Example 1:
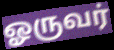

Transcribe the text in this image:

ஓருவர்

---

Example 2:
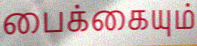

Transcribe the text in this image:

பைக்கையும்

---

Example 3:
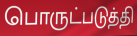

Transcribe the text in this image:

பொருட்படுத்தி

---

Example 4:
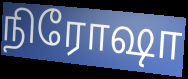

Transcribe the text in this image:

நிரோஷா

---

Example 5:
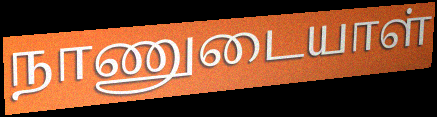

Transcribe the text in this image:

நாணுடையாள்